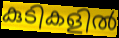
കുടികളിൽ